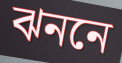
ঝননে